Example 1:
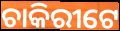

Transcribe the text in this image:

ଚାକିରୀଟେ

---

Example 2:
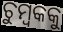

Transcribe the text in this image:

ଚୁମ୍ବକକୁ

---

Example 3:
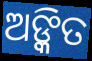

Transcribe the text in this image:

ଅଙ୍କିତ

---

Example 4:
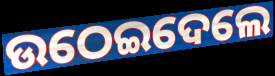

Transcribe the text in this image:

ଉଠେଇଦେଲେ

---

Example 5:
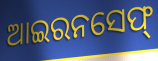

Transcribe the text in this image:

ଆଇରନସେଫ୍